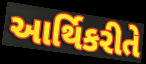
આર્થિકરીતે